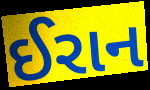
ઈરાન